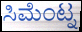
ಸಿಮೆಂಟ್ನ